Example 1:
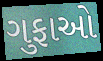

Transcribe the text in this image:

ગુફાઓ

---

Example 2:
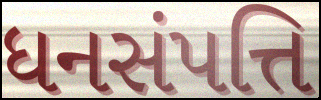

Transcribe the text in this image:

ધનસંપત્તિ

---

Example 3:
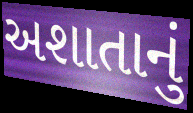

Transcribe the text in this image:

અશાતાનું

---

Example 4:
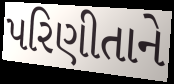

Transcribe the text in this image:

પરિણીતાને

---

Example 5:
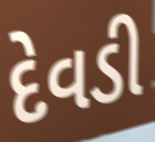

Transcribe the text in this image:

દેવડી